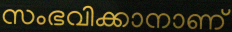
സംഭവിക്കാനാണ്